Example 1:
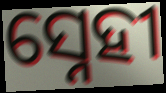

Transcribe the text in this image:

ସ୍ନେହୀ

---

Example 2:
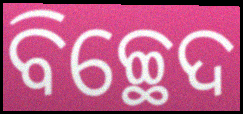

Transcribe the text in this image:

ବିଚ୍ଛେଦ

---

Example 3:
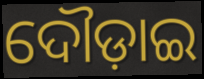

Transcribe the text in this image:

ଦୌଡ଼ାଇ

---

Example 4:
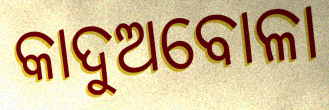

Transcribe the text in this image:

କାଦୁଅବୋଳା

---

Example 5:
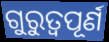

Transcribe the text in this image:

ଗୁରୁତ୍ୱପୂର୍ଣ